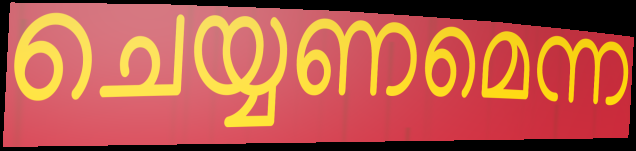
ചെയ്യണമെന്ന